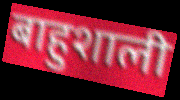
बाहुशाली